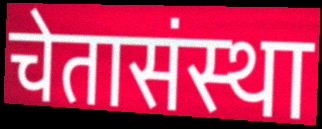
चेतासंस्था